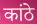
कांठे